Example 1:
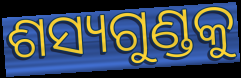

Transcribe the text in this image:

ଶସ୍ୟଗୁଣ୍ଡକୁ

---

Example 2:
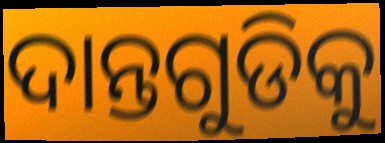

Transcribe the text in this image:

ଦାନ୍ତଗୁଡିକୁ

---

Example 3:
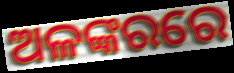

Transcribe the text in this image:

ଅଳଙ୍କରରେ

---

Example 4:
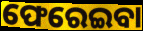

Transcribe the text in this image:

ଫେରେଇବା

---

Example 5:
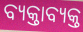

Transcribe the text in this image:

ବ୍ୟକ୍ତାବ୍ୟକ୍ତ